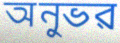
অনুভৱ